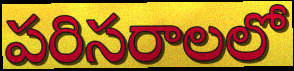
పరిసరాలలో